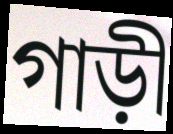
গাড়ী